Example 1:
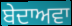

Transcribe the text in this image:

ਬੇਦਾਅਵਾ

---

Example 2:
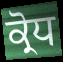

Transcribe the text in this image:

ਕ੍ਰੋਧ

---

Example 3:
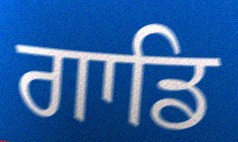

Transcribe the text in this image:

ਗਾਡਿ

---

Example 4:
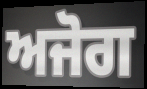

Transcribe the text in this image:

ਅਜੋਗ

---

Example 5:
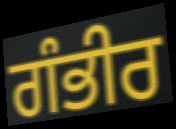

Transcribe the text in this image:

ਗੰਭੀਰ